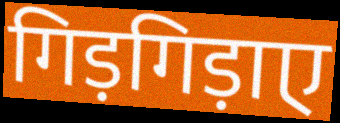
गिड़गिड़ाए